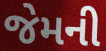
જેમની